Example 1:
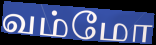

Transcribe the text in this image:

வம்மோ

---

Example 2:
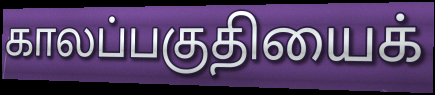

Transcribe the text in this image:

காலப்பகுதியைக்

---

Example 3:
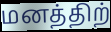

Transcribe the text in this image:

மனத்திற்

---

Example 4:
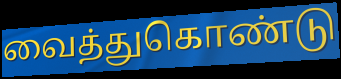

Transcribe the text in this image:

வைத்துகொண்டு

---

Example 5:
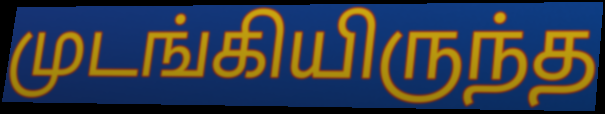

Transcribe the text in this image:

முடங்கியிருந்த